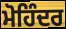
ਮੋਹਿੰਦਰ